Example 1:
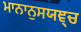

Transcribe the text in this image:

ਮਾਨਾਨੁਸਯਞ੍ਚ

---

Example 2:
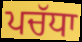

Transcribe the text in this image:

ਪਚੱਧਾ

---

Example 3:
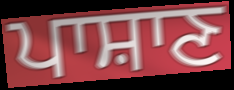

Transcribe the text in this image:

ਪਾਸ਼ਾਣ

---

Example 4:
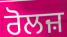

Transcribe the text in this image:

ਰੋਲਜ਼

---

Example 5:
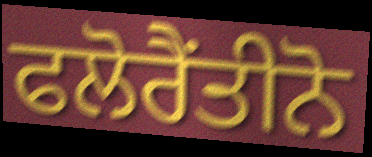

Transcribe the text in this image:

ਫਲੋਰੈਂਤੀਨੋ